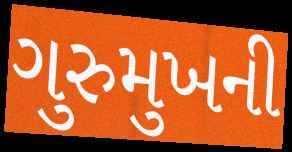
ગુરુમુખની